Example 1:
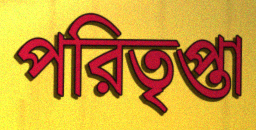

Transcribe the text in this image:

পরিতৃপ্তা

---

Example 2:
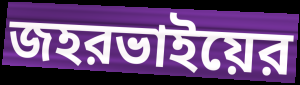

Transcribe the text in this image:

জহরভাইয়ের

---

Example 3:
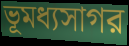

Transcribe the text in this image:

ভূমধ্যসাগর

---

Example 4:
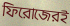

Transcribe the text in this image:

ফিরোজেরই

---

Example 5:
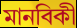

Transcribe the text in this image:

মানবিকী